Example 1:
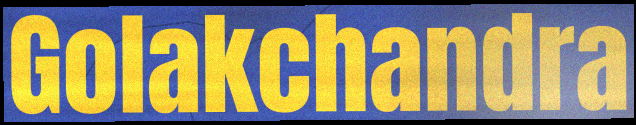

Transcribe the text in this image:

Golakchandra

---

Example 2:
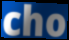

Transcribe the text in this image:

cho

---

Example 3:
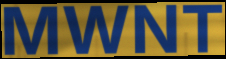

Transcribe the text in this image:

MWNT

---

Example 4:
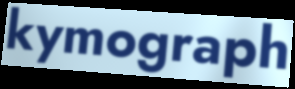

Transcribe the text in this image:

kymograph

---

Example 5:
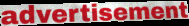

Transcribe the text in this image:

advertisement